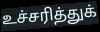
உச்சரித்துக்